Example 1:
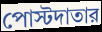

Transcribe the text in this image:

পোস্টদাতার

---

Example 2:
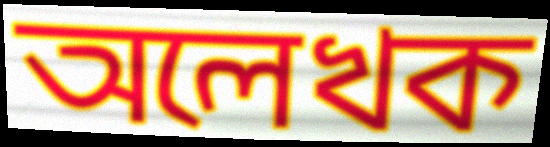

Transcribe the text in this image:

অলেখক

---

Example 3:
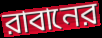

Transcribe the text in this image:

রাবানের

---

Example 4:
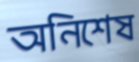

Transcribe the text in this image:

অনিশেষ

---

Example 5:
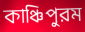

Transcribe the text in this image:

কাঞ্চিপুরম